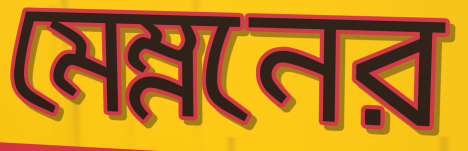
মেম্ননের